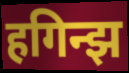
हगिन्झ